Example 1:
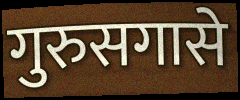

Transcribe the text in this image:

गुरुसगासे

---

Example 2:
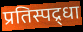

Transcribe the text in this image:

प्रतिस्पद्र्धा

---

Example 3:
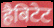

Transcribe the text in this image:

हैबिटेट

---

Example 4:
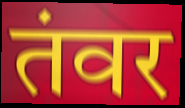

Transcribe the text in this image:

तंवर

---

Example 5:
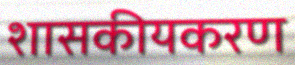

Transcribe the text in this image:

शासकीयकरण